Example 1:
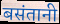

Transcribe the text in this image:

बसंतानी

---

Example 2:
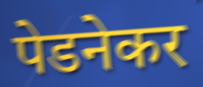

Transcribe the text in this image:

पेडनेकर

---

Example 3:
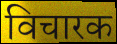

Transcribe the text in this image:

विचारक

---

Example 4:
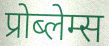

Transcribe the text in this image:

प्रोब्लेम्स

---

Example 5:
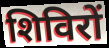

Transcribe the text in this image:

शिविरों